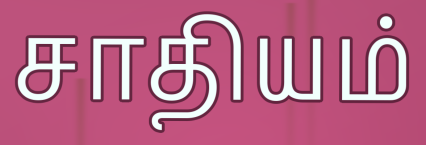
சாதியம்